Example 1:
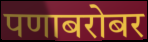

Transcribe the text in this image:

पणाबरोबर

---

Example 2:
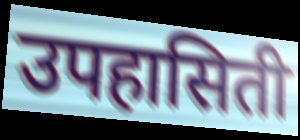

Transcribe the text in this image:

उपहासिती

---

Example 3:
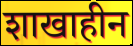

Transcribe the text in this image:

शाखाहीन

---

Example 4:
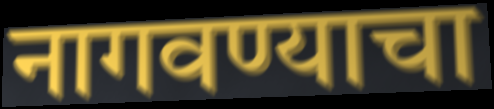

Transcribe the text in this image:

नागवण्याचा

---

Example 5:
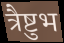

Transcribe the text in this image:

त्रैष्टुभ